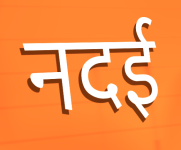
नदई